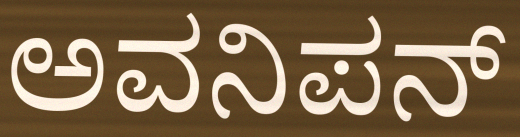
ಅವನಿಪನ್